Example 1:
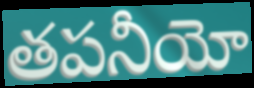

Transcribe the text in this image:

తపనీయో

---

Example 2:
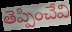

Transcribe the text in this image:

తెప్పించేవి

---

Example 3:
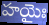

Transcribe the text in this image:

హయైః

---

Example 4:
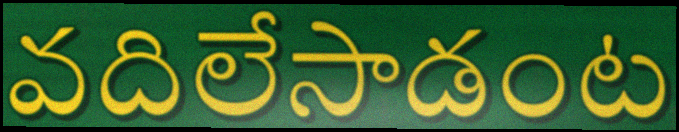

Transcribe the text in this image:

వదిలేసాడంట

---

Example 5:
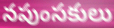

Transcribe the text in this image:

నపుంసకులు